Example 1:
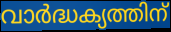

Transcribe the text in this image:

വാർദ്ധക്യത്തിന്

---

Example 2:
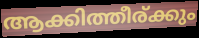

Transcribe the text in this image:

ആക്കിത്തീര്ക്കും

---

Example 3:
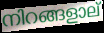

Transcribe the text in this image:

നിറങ്ങളാല്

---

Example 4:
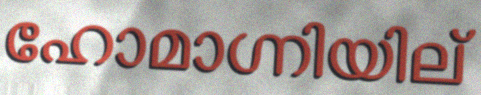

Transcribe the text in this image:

ഹോമാഗ്നിയില്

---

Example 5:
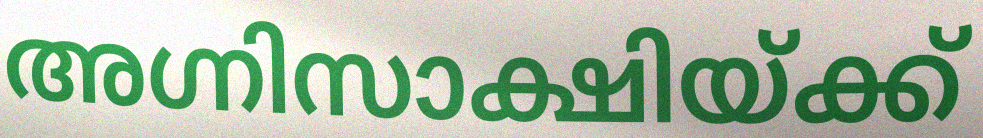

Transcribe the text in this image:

അഗ്നിസാക്ഷിയ്ക്ക്